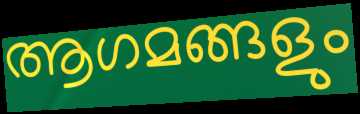
ആഗമങ്ങളും